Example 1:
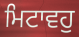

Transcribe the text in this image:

ਮਿਟਾਵਹੁ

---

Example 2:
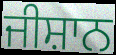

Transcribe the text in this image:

ਜੀਸ਼ਾਨ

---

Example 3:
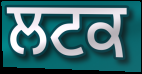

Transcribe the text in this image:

ਲਟਕ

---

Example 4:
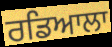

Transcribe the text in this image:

ਰਡਿਆਲਾ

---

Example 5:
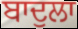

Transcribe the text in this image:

ਬਾਦੁਲਾ